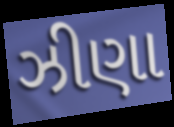
ઝીણા